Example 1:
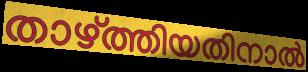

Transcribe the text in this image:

താഴ്ത്തിയതിനാൽ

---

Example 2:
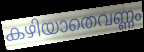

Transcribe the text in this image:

കഴിയാതെവണ്ണം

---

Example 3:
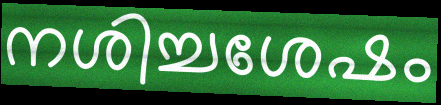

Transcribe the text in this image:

നശിച്ചശേഷം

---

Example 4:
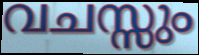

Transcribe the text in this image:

വചസ്സും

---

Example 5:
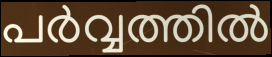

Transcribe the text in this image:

പർവ്വത്തിൽ